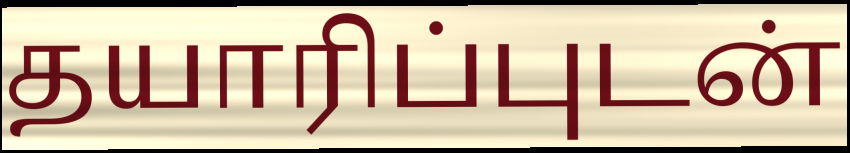
தயாரிப்புடன்